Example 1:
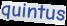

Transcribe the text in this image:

quintus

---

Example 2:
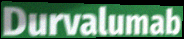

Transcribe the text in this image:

Durvalumab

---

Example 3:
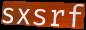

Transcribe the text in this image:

sxsrf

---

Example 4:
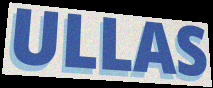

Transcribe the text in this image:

ULLAS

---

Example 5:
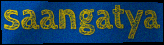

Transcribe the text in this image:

saangatya